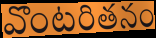
వొంటరితనం